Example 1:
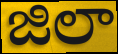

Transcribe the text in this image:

జిలా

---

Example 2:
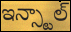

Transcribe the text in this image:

ఇన్స్టాల్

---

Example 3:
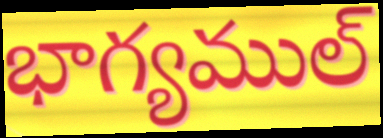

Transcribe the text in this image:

భాగ్యముల్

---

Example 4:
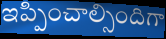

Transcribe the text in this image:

ఇప్పించాల్సిందిగా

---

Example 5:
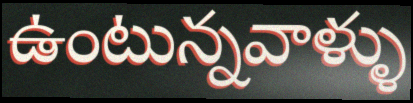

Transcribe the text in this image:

ఉంటున్నవాళ్ళు